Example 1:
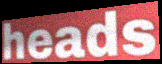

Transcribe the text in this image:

heads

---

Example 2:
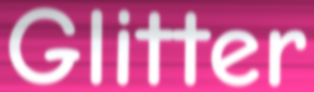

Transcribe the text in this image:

Glitter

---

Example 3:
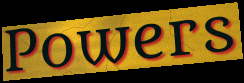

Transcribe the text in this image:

Powers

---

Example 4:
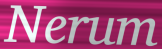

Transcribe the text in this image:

Nerum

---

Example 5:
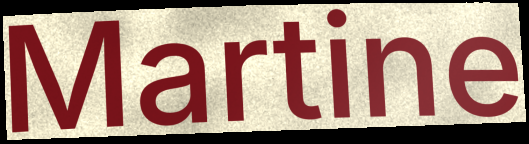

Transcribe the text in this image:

Martine